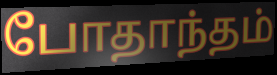
போதாந்தம்